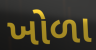
ખોળા